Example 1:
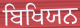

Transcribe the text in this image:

ਬਿਖਿਯਨ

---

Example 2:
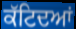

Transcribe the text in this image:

ਕੱਟਿਦਆਂ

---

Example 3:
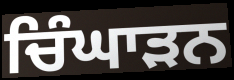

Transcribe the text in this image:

ਚਿੰਘਾੜਨ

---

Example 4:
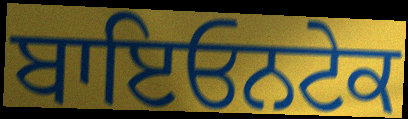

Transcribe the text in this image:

ਬਾਇਓਨਟੇਕ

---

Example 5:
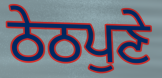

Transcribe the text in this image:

ਠੇਠਪੁਣੇ